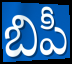
బిపీ